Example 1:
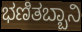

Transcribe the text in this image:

ಭಣಿತಬ್ಬಾನಿ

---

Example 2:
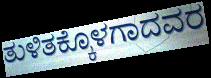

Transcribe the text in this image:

ತುಳಿತಕ್ಕೊಳಗಾದವರ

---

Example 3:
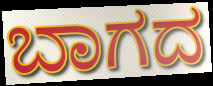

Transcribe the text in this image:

ಬಾಗದ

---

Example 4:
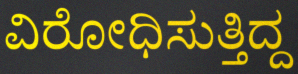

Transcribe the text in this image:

ವಿರೋಧಿಸುತ್ತಿದ್ದ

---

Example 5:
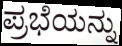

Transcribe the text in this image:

ಪ್ರಭೆಯನ್ನು